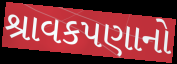
શ્રાવકપણાનો